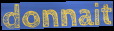
donnait